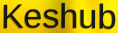
Keshub